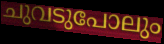
ചുവടുപോലും